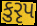
કુરૃપ